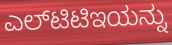
ಎಲ್‌ಟಿಟಿಇಯನ್ನು